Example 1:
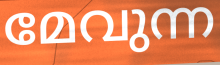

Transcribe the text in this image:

മേവുന്ന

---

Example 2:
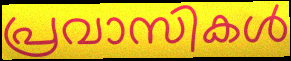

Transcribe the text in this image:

പ്രവാസികൾ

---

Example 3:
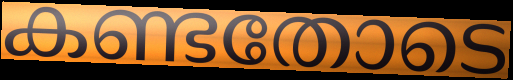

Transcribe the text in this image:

കണ്ടതോടെ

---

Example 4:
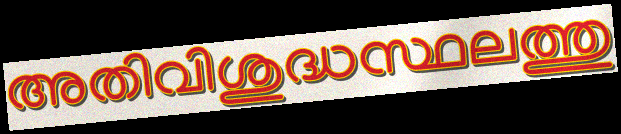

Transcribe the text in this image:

അതിവിശുദ്ധസ്ഥലത്തു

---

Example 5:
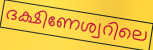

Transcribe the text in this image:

ദക്ഷിണേശ്വറിലെ